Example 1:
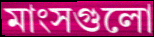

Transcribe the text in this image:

মাংসগুলো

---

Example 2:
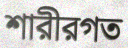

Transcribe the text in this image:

শারীরগত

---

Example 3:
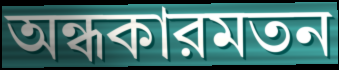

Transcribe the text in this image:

অন্ধকারমতন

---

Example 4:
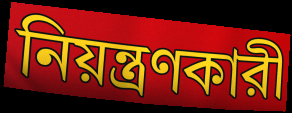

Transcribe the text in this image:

নিয়ন্ত্রণকারী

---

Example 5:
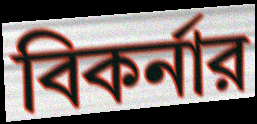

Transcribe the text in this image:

বিকর্নার